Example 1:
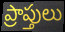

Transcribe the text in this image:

ప్రాప్తులు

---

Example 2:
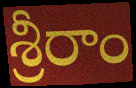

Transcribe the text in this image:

శ్రీరాం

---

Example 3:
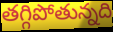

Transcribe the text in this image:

తగ్గిపోతున్నది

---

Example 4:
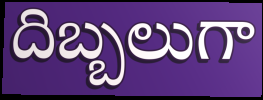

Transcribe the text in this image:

దిబ్బలుగా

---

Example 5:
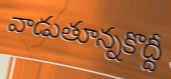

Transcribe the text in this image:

వాడుతూన్నకొద్దీ